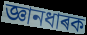
জ্ঞানধাৰক